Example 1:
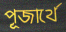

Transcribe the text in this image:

পূজার্থে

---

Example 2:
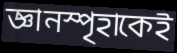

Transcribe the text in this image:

জ্ঞানস্পৃহাকেই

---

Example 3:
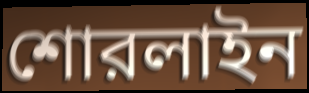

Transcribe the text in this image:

শোরলাইন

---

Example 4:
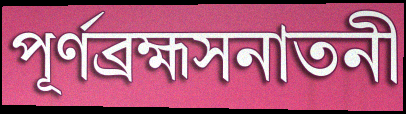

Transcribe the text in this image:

পূর্ণব্রহ্মসনাতনী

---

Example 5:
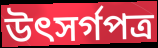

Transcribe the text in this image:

উৎসর্গপত্র